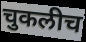
चुकलीच